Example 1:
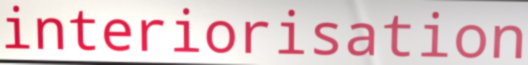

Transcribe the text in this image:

interiorisation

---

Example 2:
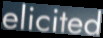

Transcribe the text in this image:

elicited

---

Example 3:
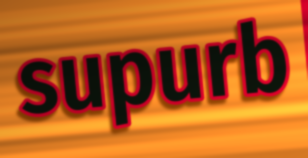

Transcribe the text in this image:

supurb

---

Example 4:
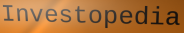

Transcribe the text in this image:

Investopedia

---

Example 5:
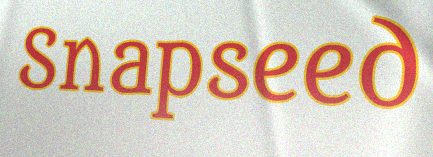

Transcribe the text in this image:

Snapseed